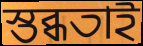
স্তব্ধতাই